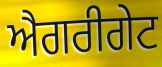
ਐਗਰੀਗੇਟ